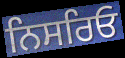
ਨਿਸਰਿਓ